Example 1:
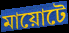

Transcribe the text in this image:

মায়োটে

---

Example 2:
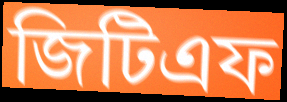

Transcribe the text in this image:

জিটিএফ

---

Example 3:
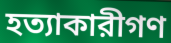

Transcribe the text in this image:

হত্যাকারীগণ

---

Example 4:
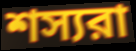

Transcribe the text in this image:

শস্যরা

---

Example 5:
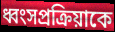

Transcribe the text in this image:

ধ্বংসপ্রক্রিয়াকে